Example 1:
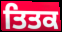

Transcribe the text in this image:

ਤਿਤਕ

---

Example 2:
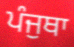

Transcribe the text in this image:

ਪੰਜੁਥਾ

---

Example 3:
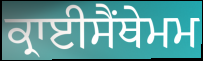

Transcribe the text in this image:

ਕ੍ਰਾਈਸੈਂਥੇਮਮ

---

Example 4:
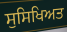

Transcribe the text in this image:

ਸੁਸਿਖਿਅਤ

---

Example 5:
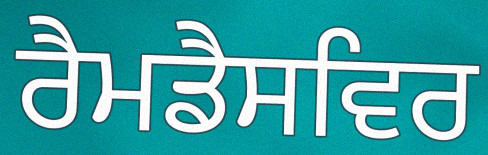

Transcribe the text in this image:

ਰੈਮਡੈਸਵਿਰ